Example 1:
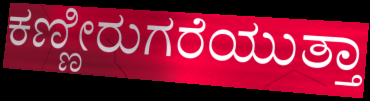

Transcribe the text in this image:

ಕಣ್ಣೀರುಗರೆಯುತ್ತಾ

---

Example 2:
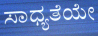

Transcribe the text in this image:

ಸಾಧ್ಯತೆಯೇ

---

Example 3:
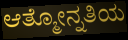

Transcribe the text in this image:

ಆತ್ಮೋನ್ನತಿಯ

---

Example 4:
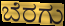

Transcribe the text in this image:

ಬೆರಗು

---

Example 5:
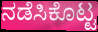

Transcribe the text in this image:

ನಡೆಸಿಕೊಟ್ಟ